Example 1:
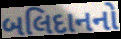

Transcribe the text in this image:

બલિદાનનો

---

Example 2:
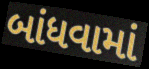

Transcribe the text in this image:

બાંધવામાં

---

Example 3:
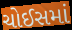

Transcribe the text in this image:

ચોઈસમાં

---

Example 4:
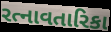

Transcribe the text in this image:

રત્નાવતારિકા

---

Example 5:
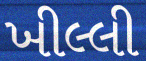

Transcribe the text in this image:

ખીલ્લી